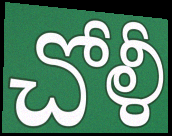
చోళీ